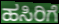
ಹಸಿರಿಗೆ